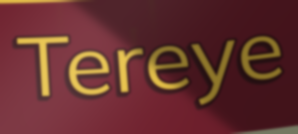
Tereye